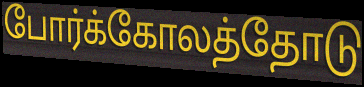
போர்க்கோலத்தோடு